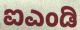
ಐಎಂಡಿ